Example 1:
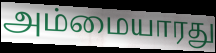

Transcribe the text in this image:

அம்மையாரது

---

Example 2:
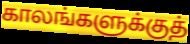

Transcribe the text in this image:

காலங்களுக்குத்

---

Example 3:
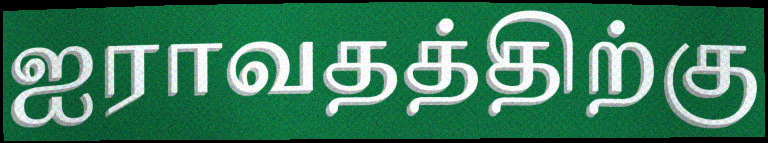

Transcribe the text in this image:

ஐராவதத்திற்கு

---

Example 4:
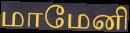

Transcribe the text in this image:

மாமேனி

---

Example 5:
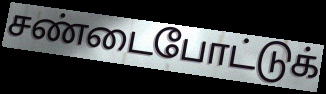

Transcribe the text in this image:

சண்டைபோட்டுக்